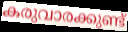
കരുവാരക്കുണ്ട്